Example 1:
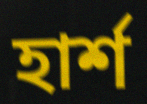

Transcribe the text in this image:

হার্শ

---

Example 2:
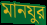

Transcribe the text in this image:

মানযুর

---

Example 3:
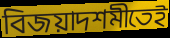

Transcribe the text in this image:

বিজয়াদশমীতেই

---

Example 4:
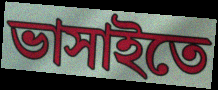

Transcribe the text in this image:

ভাসাইতে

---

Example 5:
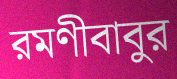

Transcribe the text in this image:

রমণীবাবুর